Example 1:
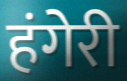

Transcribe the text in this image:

हंगेरी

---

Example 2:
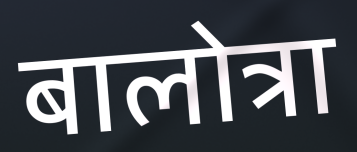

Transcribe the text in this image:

बालोत्रा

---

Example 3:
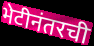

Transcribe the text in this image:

भेटीनंतरची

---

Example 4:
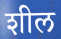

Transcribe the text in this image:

शील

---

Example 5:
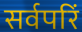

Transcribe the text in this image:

सर्वपरिं